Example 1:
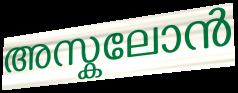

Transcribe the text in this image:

അസ്കലോൻ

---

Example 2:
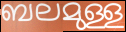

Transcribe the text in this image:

ബലമുള്ള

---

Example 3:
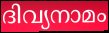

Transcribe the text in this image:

ദിവ്യനാമം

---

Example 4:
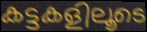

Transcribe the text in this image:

കട്ടകളിലൂടെ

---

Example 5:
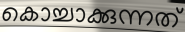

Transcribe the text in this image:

കൊച്ചാക്കുന്നത്